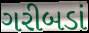
ગરીબડાં